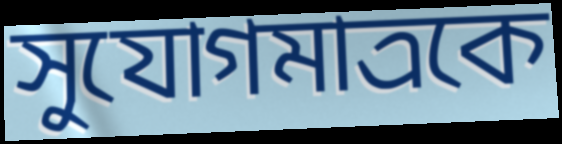
সুযোগমাত্রকে